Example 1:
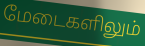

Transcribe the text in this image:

மேடைகளிலும்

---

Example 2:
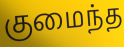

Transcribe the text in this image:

குமைந்த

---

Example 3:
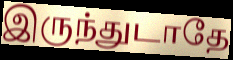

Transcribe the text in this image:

இருந்துடாதே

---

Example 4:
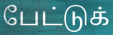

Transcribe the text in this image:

பேட்டுக்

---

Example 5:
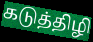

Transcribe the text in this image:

கடுத்திழி